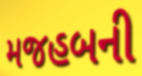
મજહબની